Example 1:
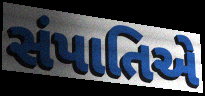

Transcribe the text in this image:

સંપાતિએ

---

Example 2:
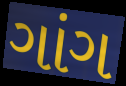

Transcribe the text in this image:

ગાંગ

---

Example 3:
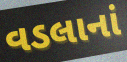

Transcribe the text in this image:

વડલાનાં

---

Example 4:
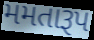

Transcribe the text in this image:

મમતારૂપ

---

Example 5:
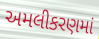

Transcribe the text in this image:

અમલીકરણમાં